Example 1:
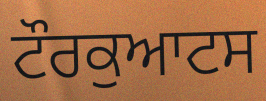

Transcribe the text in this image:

ਟੌਰਕੁਆਟਸ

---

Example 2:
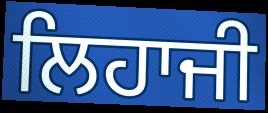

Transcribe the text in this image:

ਲਿਹਾਜੀ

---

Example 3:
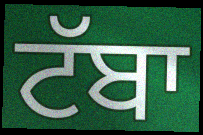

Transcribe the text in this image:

ਟੱਬਾ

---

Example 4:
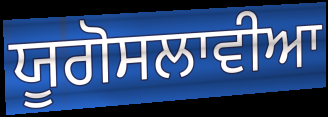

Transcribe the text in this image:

ਯੂਗੋਸਲਾਵੀਆ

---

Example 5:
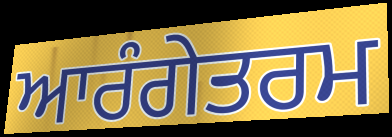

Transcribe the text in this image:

ਆਰੰਗੇਤਰਮ